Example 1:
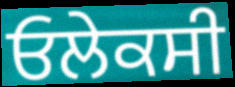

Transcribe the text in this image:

ਓਲੇਕਸੀ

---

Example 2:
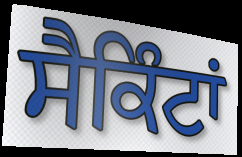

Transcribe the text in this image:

ਸੈਕਿੰਟਾਂ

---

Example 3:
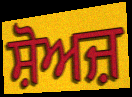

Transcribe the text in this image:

ਸ਼ੋਅਜ਼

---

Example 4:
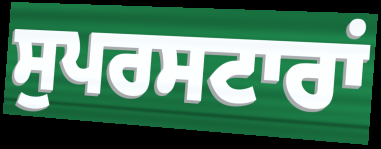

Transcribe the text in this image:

ਸੁਪਰਸਟਾਰਾਂ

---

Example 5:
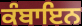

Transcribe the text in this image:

ਕੰਬਾਇਨ